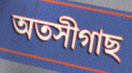
অতসীগাছ